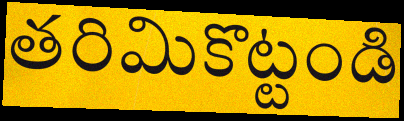
తరిమికొట్టండి